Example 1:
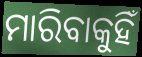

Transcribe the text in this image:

ମାରିବାକୁହିଁ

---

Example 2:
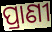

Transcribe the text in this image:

ପ୍ରାଣୀ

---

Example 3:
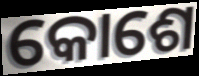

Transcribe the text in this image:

କୋଶେ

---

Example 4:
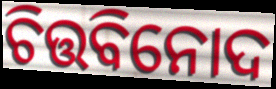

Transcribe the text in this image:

ଚିତ୍ତବିନୋଦ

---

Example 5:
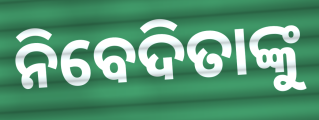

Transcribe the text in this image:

ନିବେଦିତାଙ୍କୁ